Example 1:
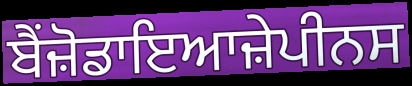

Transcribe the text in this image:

ਬੈਂਜ਼ੋਡਾਇਆਜ਼ੇਪੀਨਸ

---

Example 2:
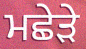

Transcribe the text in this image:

ਮਛੇੜੇ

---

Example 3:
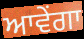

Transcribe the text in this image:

ਆਵੇਂਗਾ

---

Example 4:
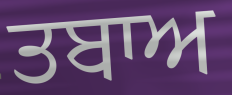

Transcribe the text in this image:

ਤਬਾਅ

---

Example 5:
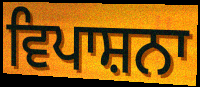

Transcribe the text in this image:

ਵਿਪਾਸ਼ਨਾ